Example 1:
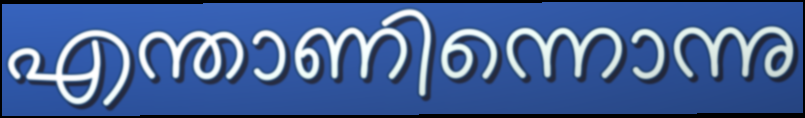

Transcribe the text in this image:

എന്താണിന്നൊന്നു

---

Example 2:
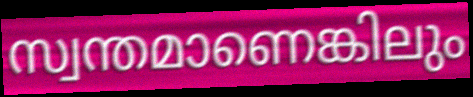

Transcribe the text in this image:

സ്വന്തമാണെങ്കിലും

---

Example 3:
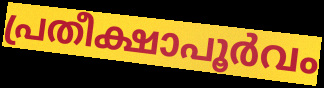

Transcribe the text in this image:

പ്രതീക്ഷാപൂർവം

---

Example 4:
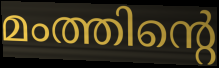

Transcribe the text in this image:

മംത്തിന്റെ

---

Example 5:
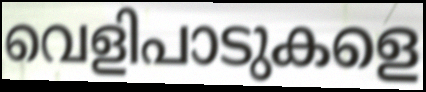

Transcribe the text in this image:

വെളിപാടുകളെ